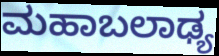
ಮಹಾಬಲಾಢ್ಯ